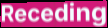
Receding